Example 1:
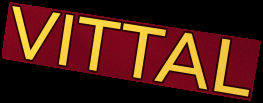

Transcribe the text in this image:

VITTAL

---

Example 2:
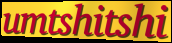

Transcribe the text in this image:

umtshitshi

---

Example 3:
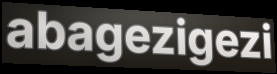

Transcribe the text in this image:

abagezigezi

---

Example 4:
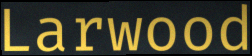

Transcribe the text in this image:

Larwood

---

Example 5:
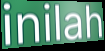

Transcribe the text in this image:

inilah